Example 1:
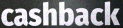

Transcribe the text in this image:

cashback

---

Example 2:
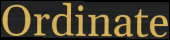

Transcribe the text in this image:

Ordinate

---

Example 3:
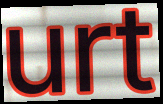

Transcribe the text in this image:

urt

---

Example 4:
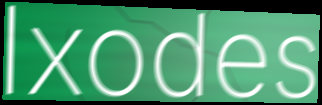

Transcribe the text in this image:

Ixodes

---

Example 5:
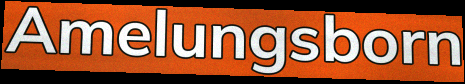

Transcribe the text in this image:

Amelungsborn